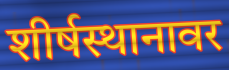
शीर्षस्थानावर